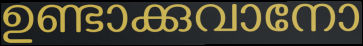
ഉണ്ടാക്കുവാനോ